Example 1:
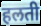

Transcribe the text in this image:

हलती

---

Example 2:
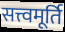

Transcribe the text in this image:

सत्त्वमूर्ति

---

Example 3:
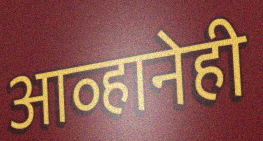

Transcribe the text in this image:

आव्हानेही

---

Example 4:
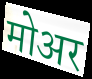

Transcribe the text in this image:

मोअर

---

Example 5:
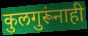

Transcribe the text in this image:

कुलगुरूंनाही